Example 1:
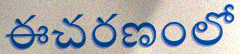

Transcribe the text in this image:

ఈచరణంలో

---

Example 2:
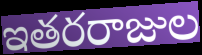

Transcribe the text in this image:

ఇతరరాజుల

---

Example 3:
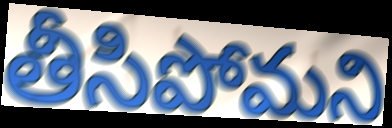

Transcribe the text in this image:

తీసిపోమని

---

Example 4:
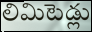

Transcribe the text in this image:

లిమిటెడ్లు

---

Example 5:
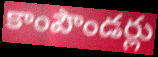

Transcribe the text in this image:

కాంపౌండర్లు